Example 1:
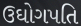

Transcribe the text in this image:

ઉઘોગપતિ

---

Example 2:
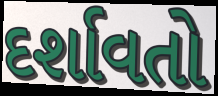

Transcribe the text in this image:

દર્શાવતો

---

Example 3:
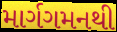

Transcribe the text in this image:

માર્ગગમનથી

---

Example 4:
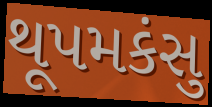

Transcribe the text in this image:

થૂપમકંસુ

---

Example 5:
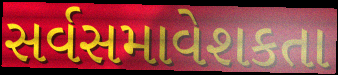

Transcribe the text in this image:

સર્વસમાવેશકતા